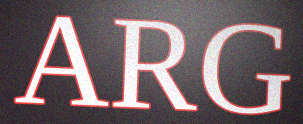
ARG